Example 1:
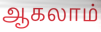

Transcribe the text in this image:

ஆகலாம்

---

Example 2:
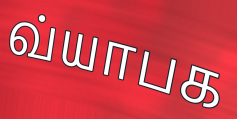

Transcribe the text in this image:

வ்யாபக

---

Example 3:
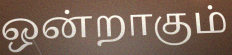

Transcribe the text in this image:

ஒன்றாகும்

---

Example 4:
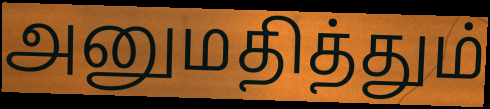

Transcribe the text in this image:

அனுமதித்தும்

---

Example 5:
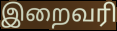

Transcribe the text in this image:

இறைவரி